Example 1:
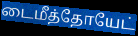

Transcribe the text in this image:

டைமீத்தோயேட்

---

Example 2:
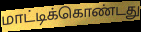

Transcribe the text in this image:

மாட்டிக்கொண்டது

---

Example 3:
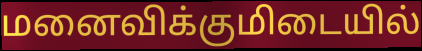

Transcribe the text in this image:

மனைவிக்குமிடையில்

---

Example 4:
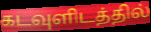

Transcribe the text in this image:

கடவுளிடத்தில்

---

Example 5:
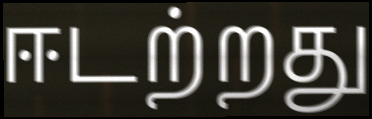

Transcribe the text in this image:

ஈடற்றது